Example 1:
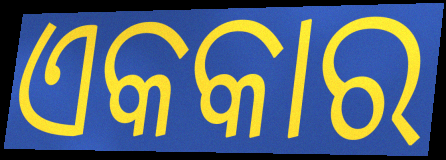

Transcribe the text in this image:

ଏକକାର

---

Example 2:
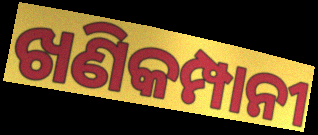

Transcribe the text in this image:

ଖଣିକମ୍ପାନୀ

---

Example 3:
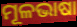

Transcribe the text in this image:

ମୂଳଭାଷା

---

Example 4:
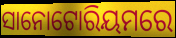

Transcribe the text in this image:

ସାନୋଟୋରିୟମରେ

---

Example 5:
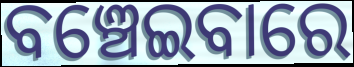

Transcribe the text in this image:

ବଞ୍ଚେଇବାରେ